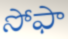
సోఫా